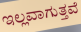
ಇಲ್ಲವಾಗುತ್ತವೆ